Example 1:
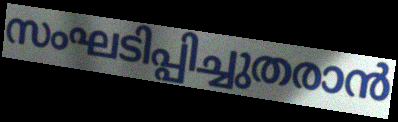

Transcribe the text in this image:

സംഘടിപ്പിച്ചുതരാൻ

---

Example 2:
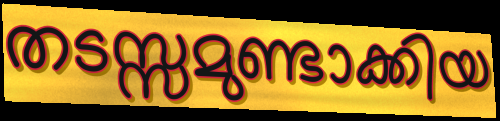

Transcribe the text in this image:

തടസ്സമുണ്ടാക്കിയ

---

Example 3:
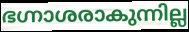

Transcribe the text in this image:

ഭഗ്നാശരാകുന്നില്ല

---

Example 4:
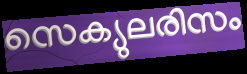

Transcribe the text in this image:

സെക്യുലരിസം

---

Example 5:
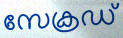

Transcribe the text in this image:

സേക്രഡ്